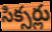
సిక్సర్లు